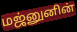
மஜ்னுனின்